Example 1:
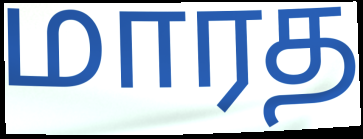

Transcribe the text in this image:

மாரத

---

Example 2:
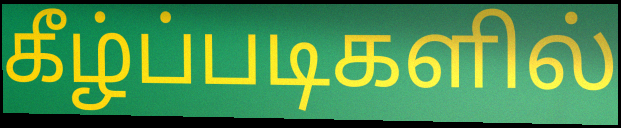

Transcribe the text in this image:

கீழ்ப்படிகளில்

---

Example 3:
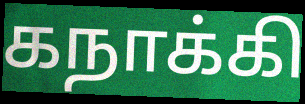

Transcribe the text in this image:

கநாக்கி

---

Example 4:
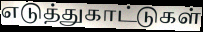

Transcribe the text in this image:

எடுத்துகாட்டுகள்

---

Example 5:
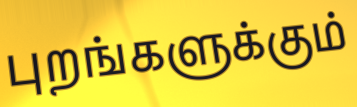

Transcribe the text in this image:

புறங்களுக்கும்